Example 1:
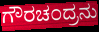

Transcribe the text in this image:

ಗೌರಚಂದ್ರನು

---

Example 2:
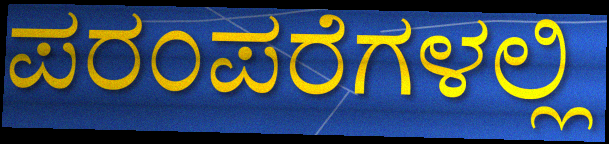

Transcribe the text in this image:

ಪರಂಪರೆಗಳಲ್ಲಿ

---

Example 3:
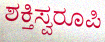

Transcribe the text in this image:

ಶಕ್ತಿಸ್ವರೂಪಿ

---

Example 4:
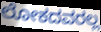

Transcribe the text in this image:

ಲೋಕದವರಲ್ಲ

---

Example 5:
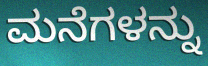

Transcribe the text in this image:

ಮನೆಗಳನ್ನು